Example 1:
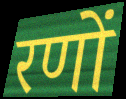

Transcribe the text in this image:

रणों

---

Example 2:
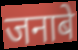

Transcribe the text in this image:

जनाबे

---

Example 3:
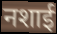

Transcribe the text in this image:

नशाई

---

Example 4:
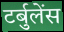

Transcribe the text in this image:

टर्बुलेंस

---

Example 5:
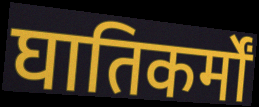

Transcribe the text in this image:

घातिकर्मों